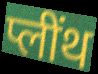
प्लींथ